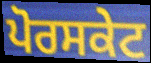
ਪੋਰਸਕੇਟ